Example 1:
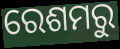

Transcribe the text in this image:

ରେଶମରୁ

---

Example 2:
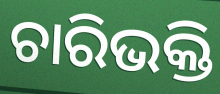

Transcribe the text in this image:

ଚାରିଭକ୍ତି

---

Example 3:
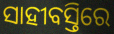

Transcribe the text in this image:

ସାହୀବସ୍ତିରେ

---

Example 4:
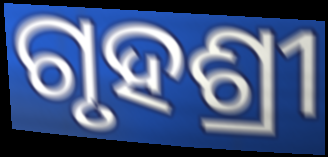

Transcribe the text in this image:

ଗୃହଶ୍ରୀ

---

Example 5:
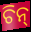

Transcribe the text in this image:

ଚିନ୍